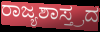
ರಾಜ್ಯಶಾಸ್ತ್ರದ